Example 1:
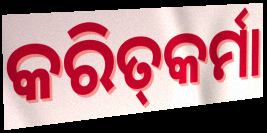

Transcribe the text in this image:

କରିତ୍‍କର୍ମା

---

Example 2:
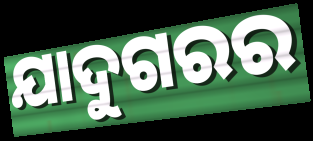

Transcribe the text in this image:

ଯାଦୁଗରର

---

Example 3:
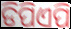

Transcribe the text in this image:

ଡିପିଏପି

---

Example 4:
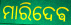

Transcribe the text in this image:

ମାରିଦେଵ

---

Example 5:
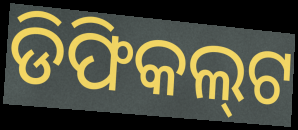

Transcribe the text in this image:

ଡିଫିକଲ୍‌ଟ